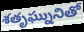
శతృఘ్నునితో